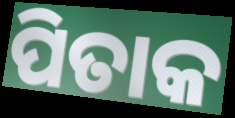
ପିତାକ